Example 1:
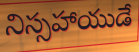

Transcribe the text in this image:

నిస్సహాయుడే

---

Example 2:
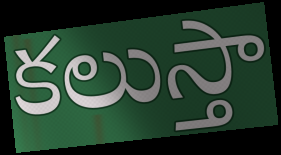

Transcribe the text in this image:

కలుస్తా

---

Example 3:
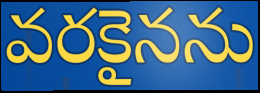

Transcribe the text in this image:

వరకైనను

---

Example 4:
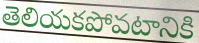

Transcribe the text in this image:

తెలియకపోవటానికి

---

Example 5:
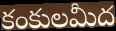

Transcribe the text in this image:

కంకులమీద